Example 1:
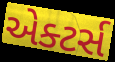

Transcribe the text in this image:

એક્ટર્સ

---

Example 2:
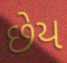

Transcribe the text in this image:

છેય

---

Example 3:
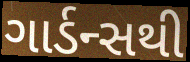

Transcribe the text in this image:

ગાર્ડન્સથી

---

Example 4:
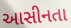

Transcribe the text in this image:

આસીનતા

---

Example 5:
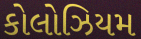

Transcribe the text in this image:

કોલોઝિયમ